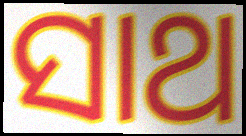
ସାଥ